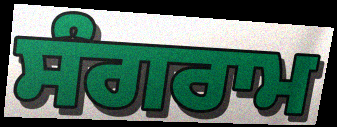
ਸੰਗਰਾਮ